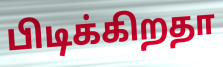
பிடிக்கிறதா